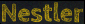
Nestler